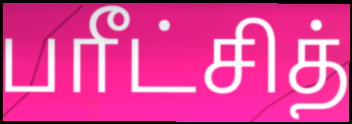
பரீட்சித்